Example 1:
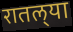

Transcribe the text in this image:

रातल्या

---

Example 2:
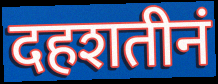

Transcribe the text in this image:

दहशतीनं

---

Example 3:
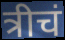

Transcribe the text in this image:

त्रीचं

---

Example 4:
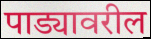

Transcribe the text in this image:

पाड्यावरील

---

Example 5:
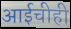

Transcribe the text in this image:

आईचीही